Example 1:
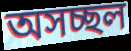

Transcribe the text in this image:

অসচ্ছল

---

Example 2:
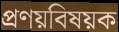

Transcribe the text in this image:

প্রণয়বিষয়ক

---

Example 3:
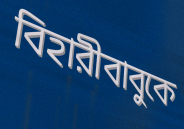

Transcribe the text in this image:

বিহারীবাবুকে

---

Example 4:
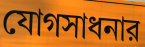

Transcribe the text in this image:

যোগসাধনার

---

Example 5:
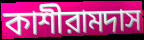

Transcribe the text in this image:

কাশীরামদাস